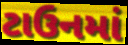
ટાઉનમાં